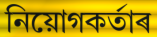
নিয়োগকৰ্তাৰ